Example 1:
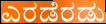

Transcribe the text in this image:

ಎರಡೆರಡು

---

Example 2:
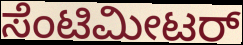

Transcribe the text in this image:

ಸೆಂಟಿಮೀಟರ್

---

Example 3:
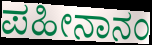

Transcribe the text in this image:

ಪಹೀನಾನಂ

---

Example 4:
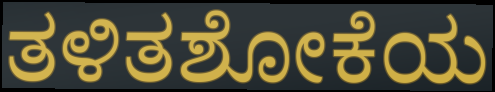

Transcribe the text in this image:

ತಳಿತಶೋಕೆಯ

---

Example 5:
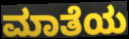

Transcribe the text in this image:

ಮಾತೆಯ